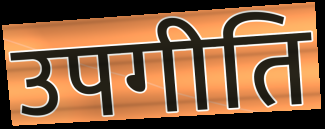
उपगीति